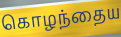
கொழந்தைய